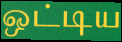
ஒட்டிய